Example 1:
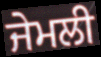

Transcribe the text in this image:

ਜੇਮਲੀ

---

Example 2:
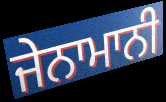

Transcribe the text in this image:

ਜੇਨਾਮਾਨੀ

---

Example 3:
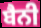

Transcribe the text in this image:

ਬੈਨੀ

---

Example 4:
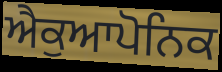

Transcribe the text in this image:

ਐਕੁਆਪੋਨਿਕ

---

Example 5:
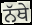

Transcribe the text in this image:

ਨੱਥੇ